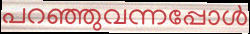
പറഞ്ഞുവന്നപ്പോൾ